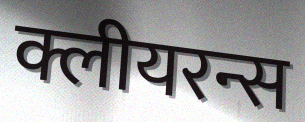
क्लीयरन्स